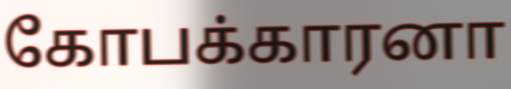
கோபக்காரனா